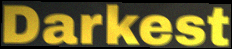
Darkest